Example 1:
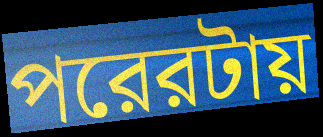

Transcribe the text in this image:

পরেরটায়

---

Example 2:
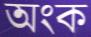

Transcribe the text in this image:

অংক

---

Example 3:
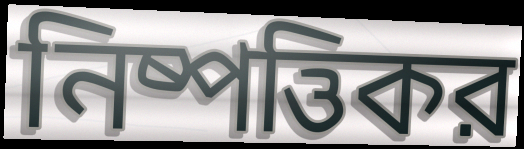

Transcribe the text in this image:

নিষ্পত্তিকর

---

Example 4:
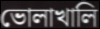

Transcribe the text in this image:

ভোলাখালি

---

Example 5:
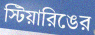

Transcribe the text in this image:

স্টিয়ারিঙের